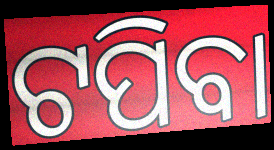
ଟପିବା